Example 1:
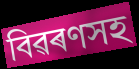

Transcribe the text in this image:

বিৱৰণসহ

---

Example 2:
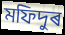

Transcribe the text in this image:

মফিদুৰ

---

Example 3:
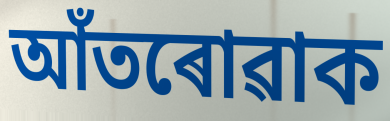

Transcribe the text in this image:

আঁতৰোৱাক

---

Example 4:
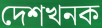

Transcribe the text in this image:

দেশখনক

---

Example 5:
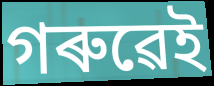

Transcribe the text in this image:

গৰুৱেই